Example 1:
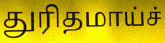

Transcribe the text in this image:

துரிதமாய்ச்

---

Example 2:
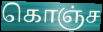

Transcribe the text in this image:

கொஞ்ச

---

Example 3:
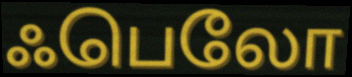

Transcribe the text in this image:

ஃபெலோ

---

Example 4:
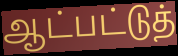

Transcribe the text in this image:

ஆட்பட்டுத்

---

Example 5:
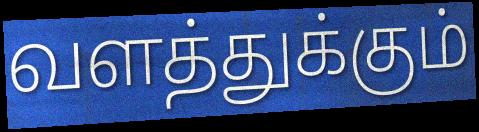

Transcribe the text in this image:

வளத்துக்கும்